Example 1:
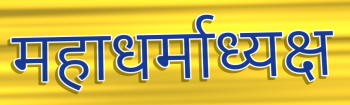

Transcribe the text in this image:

महाधर्माध्यक्ष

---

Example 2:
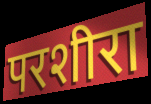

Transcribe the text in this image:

परशीरा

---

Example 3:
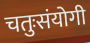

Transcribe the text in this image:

चतुःसंयोगी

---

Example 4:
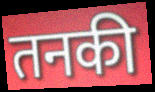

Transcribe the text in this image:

तनकी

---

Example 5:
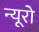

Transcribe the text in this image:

न्यूरो